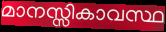
മാനസ്സികാവസ്ഥ